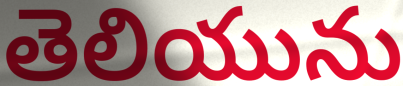
తెలియును